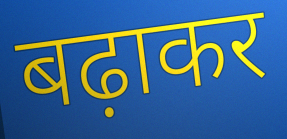
बढ़ाकर